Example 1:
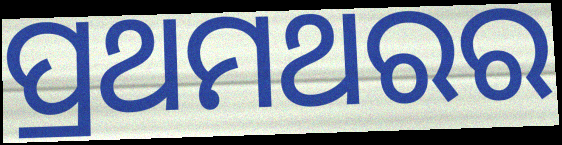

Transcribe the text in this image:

ପ୍ରଥମଥରର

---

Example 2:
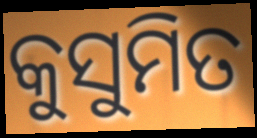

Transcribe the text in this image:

କୁସୁମିତ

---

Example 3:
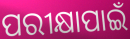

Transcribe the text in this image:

ପରୀକ୍ଷାପାଇଁ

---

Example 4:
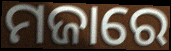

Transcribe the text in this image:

ମଜାରେ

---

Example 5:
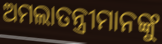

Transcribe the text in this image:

ଅମଲାତନ୍ତ୍ରୀମାନଙ୍କୁ